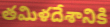
తమిళదేశానికి